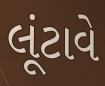
લૂંટાવે